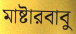
মাষ্টারবাবু